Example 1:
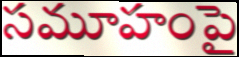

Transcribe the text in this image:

సమూహంపై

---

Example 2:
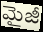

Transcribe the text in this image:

మైజీ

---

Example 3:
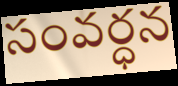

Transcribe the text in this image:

సంవర్ధన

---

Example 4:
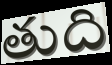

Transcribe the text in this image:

తుది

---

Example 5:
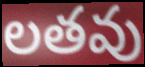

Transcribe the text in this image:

లతవు